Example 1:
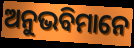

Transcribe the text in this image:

ଅନୁଭବିମାନେ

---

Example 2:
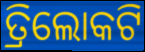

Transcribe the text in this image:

ତ୍ରିଲୋକଟି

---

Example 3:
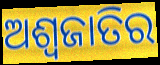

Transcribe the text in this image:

ଅଶ୍ୱଜାତିର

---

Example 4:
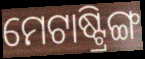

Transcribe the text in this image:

ମେଟାଷ୍ଟ୍ରିଙ୍ଗ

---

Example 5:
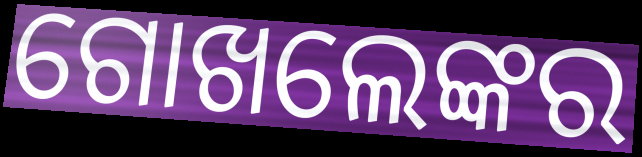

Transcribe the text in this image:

ଗୋଖଲେଙ୍କର